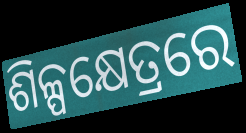
ଶିଳ୍ପକ୍ଷେତ୍ରରେ